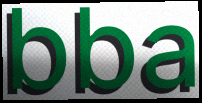
bba